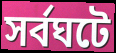
সর্বঘটে